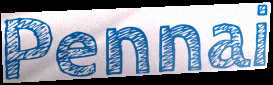
Pennai